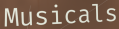
Musicals